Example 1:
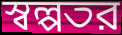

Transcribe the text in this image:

স্বল্পতর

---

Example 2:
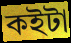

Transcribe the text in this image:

কইটা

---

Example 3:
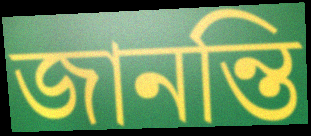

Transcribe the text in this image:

জানন্তি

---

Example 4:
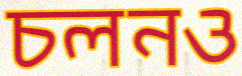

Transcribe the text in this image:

চলনও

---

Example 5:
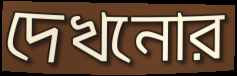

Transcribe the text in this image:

দেখনোর